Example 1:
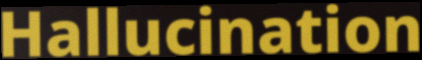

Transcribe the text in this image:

Hallucination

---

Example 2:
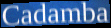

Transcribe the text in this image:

Cadamba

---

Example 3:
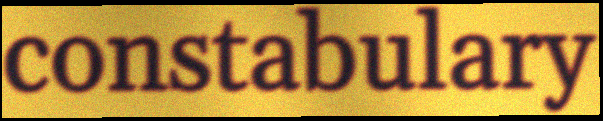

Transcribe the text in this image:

constabulary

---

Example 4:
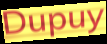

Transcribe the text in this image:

Dupuy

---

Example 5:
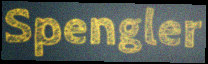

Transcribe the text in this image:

Spengler